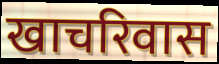
खाचरिवास